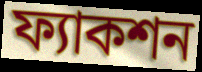
ফ্যাকশন